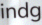
indg